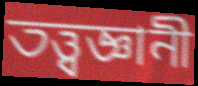
তত্ত্বজ্ঞানী